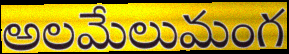
అలమేలుమంగ